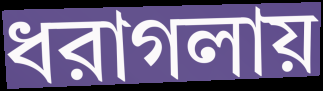
ধরাগলায়